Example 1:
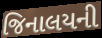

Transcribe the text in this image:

જિનાલયની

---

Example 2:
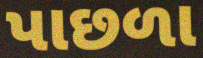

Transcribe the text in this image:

પાછળા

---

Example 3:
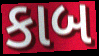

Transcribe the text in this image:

કાબ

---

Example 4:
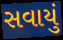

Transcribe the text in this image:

સવાયું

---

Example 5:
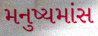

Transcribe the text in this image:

મનુષ્યમાંસ